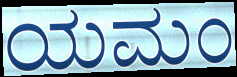
ಯಮಂ